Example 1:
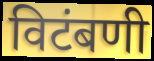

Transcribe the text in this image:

विटंबणी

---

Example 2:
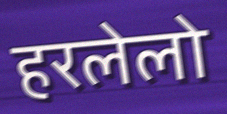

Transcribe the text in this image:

हरलेलो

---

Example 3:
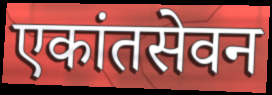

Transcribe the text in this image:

एकांतसेवन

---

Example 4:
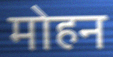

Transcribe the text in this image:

मोहन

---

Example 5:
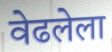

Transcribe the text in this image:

वेढलेला